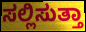
ಸಲ್ಲಿಸುತ್ತಾ